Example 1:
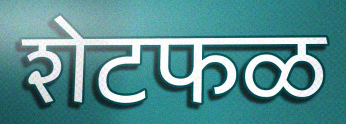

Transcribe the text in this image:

शेटफळ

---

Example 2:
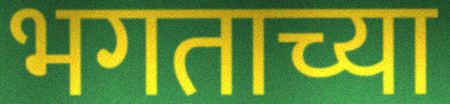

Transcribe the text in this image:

भगताच्या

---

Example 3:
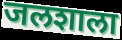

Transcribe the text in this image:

जलशाला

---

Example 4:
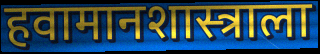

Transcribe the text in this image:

हवामानशास्त्राला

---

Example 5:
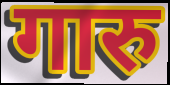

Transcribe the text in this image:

गारु